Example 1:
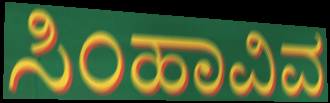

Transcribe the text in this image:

ಸಿಂಹಾವಿವ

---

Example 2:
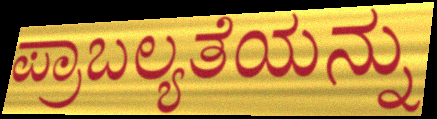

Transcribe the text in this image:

ಪ್ರಾಬಲ್ಯತೆಯನ್ನು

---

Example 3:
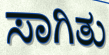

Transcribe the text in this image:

ಸಾಗಿತು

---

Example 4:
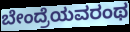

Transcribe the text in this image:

ಬೇಂದ್ರೆಯವರಂಥ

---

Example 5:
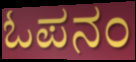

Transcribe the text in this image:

ಓಪನಂ